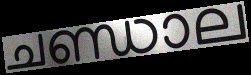
ചണ്ഡാല